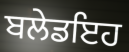
ਬਲੇਡਇਹ